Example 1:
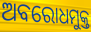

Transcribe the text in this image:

ଅବରୋଧମୁକ୍ତ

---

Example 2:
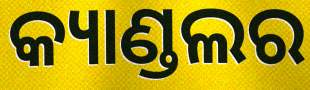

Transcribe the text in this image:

କ୍ୟାଣ୍ଡଲର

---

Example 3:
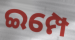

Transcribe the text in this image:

ଇମ୍ପେ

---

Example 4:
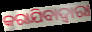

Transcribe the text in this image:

କରାଯିବାଦ୍ୱାରା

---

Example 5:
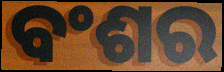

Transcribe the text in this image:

ବଂଶର